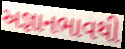
અજ્ઞાનભાવથી